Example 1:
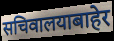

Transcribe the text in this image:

सचिवालयाबाहेर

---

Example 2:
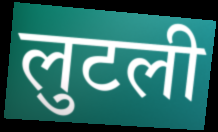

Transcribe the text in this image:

लुटली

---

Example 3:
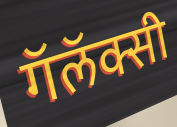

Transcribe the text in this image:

गॅलॅक्सी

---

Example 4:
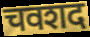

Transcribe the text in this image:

चवशद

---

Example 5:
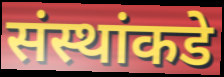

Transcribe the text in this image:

संस्थांकडे